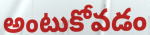
అంటుకోవడం